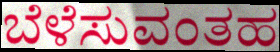
ಬೆಳೆಸುವಂತಹ